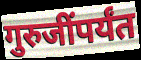
गुरुजींपर्यंत